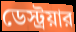
ডেস্ট্রয়ার